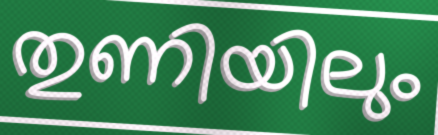
തുണിയിലും